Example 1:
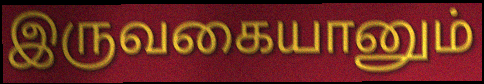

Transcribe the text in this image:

இருவகையானும்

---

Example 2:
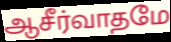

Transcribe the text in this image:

ஆசீர்வாதமே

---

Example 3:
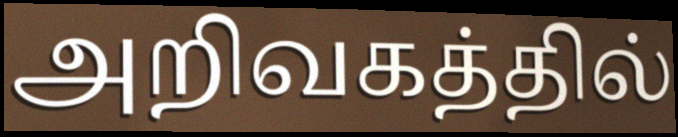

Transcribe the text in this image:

அறிவகத்தில்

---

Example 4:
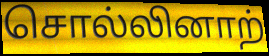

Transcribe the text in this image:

சொல்லினாற்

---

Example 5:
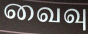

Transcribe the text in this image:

வைவு